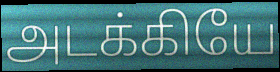
அடக்கியே